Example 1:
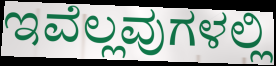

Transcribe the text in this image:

ಇವೆಲ್ಲವುಗಳಲ್ಲಿ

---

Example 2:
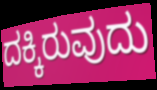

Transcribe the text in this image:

ದಕ್ಕಿರುವುದು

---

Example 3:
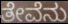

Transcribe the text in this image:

ತೇವೆನು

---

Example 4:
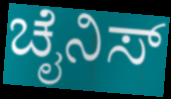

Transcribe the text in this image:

ಚೈನಿಸ್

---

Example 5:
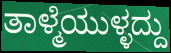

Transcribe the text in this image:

ತಾಳ್ಮೆಯುಳ್ಳದ್ದು